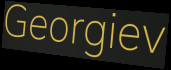
Georgiev